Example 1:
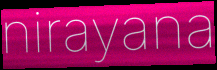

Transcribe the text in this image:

nirayana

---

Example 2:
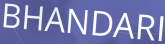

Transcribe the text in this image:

BHANDARI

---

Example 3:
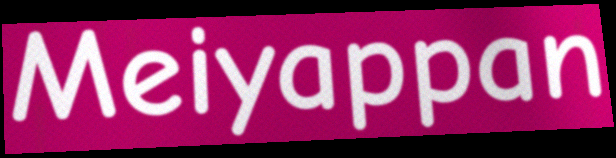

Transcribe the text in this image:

Meiyappan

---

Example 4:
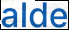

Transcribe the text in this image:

alde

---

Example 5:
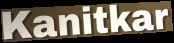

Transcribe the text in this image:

Kanitkar